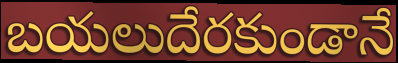
బయలుదేరకుండానే